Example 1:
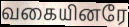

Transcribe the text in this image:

வகையினரே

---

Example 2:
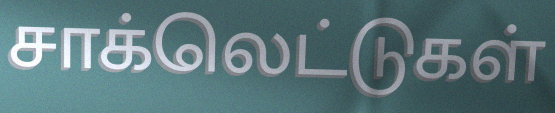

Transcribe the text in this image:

சாக்லெட்டுகள்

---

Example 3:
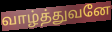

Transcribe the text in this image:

வாழ்த்துவனே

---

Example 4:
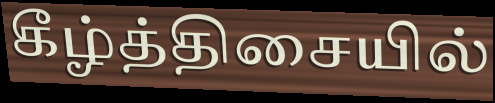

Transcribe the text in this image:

கீழ்த்திசையில்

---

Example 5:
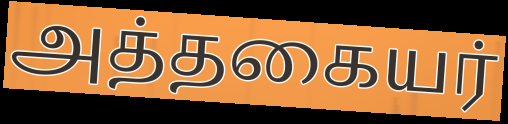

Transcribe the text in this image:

அத்தகையர்